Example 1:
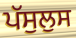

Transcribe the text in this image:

ਪੱਸੁਲੁਸ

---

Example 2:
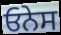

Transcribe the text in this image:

ਓਨੇਸ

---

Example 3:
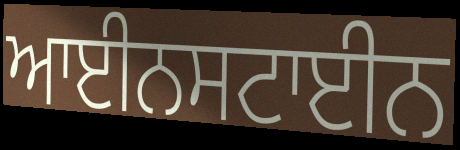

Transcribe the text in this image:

ਆਈਨਸਟਾਈਨ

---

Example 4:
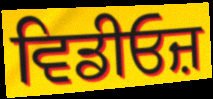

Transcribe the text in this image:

ਵਿਡੀਓਜ਼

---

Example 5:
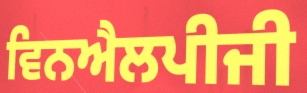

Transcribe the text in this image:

ਵਿਨਐਲਪੀਜੀ